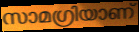
സാമഗ്രിയാണ്